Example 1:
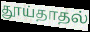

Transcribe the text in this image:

தூய்தாதல்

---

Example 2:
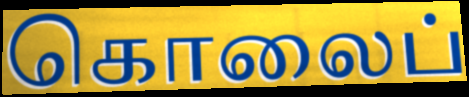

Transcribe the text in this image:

கொலைப்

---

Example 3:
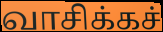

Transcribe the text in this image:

வாசிக்கச்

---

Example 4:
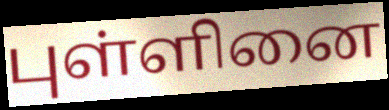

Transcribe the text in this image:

புள்ளினை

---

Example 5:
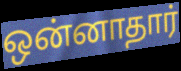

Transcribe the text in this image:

ஒன்னாதார்